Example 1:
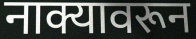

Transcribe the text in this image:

नाक्यावरून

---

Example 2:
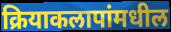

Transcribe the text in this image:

क्रियाकलापांमधील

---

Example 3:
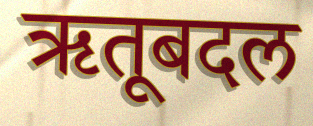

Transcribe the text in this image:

ऋतूबदल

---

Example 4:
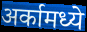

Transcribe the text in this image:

अर्कामध्ये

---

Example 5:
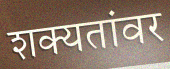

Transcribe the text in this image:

शक्यतांवर